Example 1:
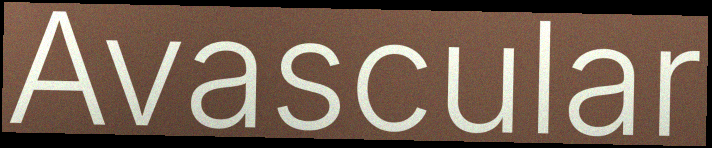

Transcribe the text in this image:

Avascular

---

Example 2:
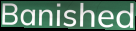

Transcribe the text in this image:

Banished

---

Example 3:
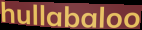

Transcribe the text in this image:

hullabaloo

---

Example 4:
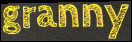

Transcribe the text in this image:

granny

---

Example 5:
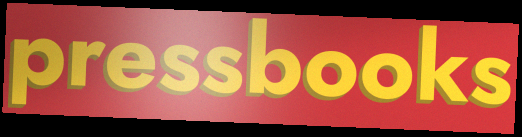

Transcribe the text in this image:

pressbooks